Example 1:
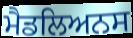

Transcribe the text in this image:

ਮੈਡਲਿਅਨਸ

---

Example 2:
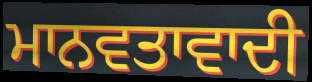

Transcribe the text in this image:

ਮਾਨਵਤਾਵਾਦੀ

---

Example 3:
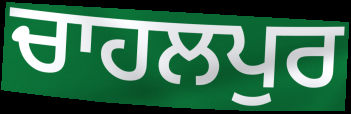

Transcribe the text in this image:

ਚਾਹਲਪੁਰ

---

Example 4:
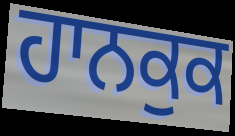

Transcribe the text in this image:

ਹਾਨਕੁਕ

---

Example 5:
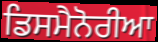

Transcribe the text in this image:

ਡਿਸਮੈਨੋਰੀਆ